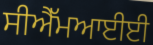
ਸੀਐੱਮਆਈਈ